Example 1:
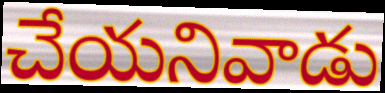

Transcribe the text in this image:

చేయనివాడు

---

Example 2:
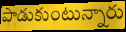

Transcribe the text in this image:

పాడుకుంటున్నారు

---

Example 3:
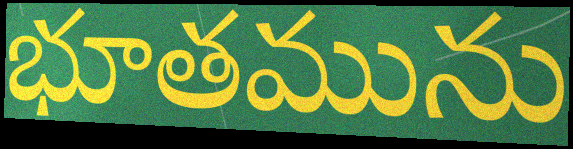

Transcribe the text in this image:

భూతమును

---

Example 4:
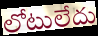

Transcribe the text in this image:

లోటులేదు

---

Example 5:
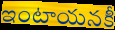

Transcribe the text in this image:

ఇంటాయనకీ